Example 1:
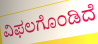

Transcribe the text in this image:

ವಿಫಲಗೊಂಡಿದೆ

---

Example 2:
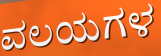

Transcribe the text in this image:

ವಲಯಗಳ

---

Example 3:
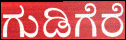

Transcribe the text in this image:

ಗುಡಿಗೆರೆ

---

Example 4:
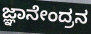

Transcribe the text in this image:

ಜ್ಞಾನೇಂದ್ರನ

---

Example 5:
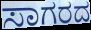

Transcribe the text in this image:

ಸಾಗರದ